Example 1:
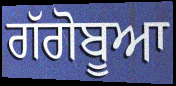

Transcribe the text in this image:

ਗੱਗੋਬੂਆ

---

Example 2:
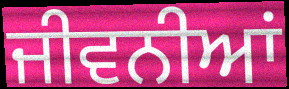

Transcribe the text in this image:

ਜੀਵਨੀਆਂ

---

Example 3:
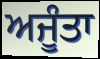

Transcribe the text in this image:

ਅਜੂੰਤਾ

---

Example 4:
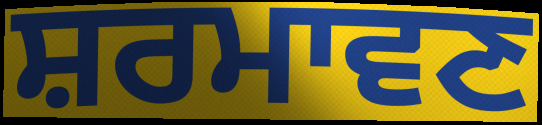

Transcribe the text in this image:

ਸ਼ਰਮਾਵਣ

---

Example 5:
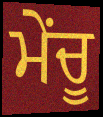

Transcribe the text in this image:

ਮੇਂਚੂ